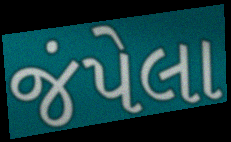
જંપેલા